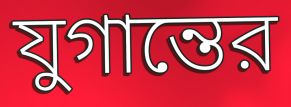
যুগান্তের